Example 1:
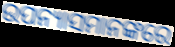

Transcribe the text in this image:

ଉପନ୍ୟାସମାନଙ୍କରେ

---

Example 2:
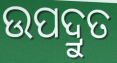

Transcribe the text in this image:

ଉପଦ୍ରୁତ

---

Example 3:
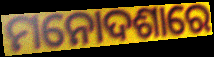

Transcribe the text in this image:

ମନୋଦଶାରେ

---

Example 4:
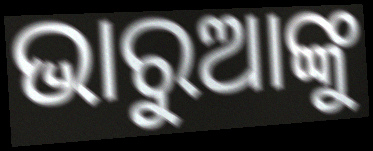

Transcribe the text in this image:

ଭାରୁଆଙ୍କୁ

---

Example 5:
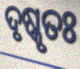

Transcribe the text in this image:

ଦୃଷ୍କୃତଃ